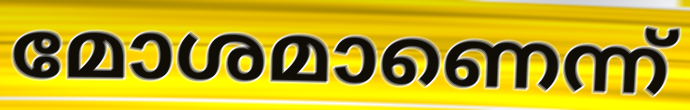
മോശമാണെന്ന്